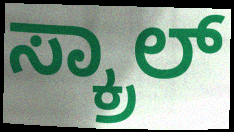
ಸ್ಕ್ರಾಲ್